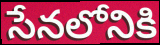
సేనలోనికి